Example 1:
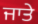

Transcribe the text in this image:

ਜਾਤੇ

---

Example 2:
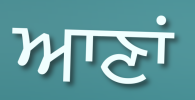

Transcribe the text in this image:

ਆਣਾਂ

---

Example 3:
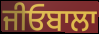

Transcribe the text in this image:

ਜੀਓਬਾਲਾ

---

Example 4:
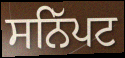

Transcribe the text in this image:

ਸਨਿੱਪਟ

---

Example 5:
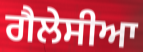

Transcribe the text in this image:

ਗੈਲੇਸੀਆ